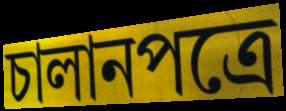
চালানপত্রে